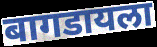
बागडायला